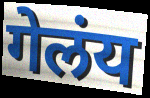
गेलंय